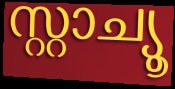
സ്റ്റാച്യൂ